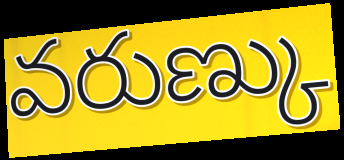
వరుణ్కు